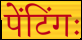
पेंटिंगः